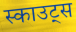
स्काउट्स